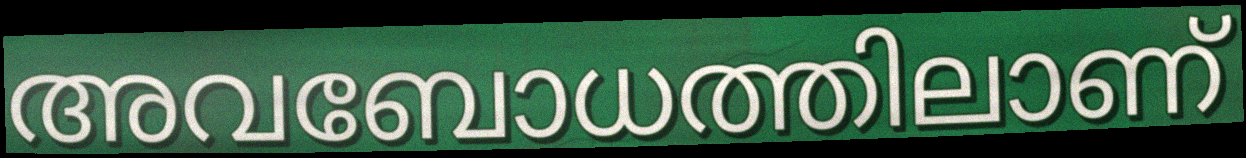
അവബോധത്തിലാണ്